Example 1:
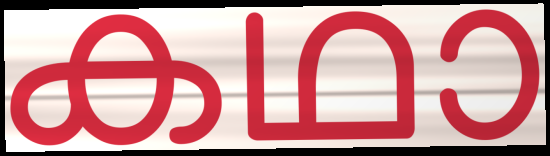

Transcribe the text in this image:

കഥാ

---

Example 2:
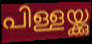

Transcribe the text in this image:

പിള്ളയ്ക്കു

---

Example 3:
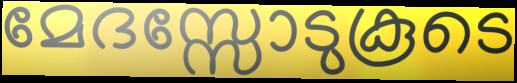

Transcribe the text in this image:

മേദസ്സോടുകൂടെ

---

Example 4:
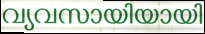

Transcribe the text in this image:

വ്യവസായിയായി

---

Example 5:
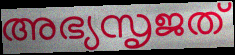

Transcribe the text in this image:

അഭ്യസൃജത്